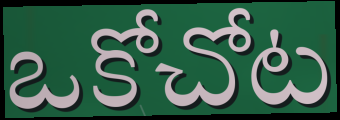
ఒకోచోట